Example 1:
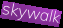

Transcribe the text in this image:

skywalk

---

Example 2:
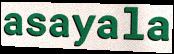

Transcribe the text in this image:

asayala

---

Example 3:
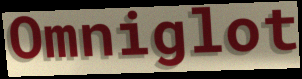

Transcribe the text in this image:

Omniglot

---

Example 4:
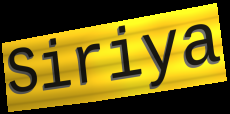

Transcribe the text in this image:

Siriya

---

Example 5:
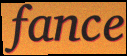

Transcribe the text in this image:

fance